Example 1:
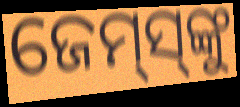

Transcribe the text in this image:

ଜେମ୍‌ସ୍‌ଙ୍କୁ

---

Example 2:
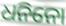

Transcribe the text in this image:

ଧନିନୋ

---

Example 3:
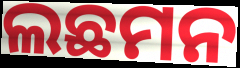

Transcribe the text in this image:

ଲଛମନ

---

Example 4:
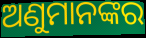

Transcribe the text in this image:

ଅଣୁମାନଙ୍କର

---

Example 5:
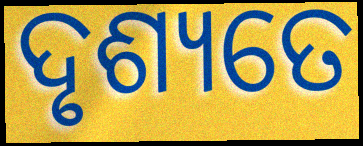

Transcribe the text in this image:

ଦୃଶ୍ୟତେ